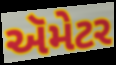
ઍમેટર